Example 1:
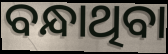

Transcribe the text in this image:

ବନ୍ଧାଥିବା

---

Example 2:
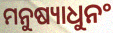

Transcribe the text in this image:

ମନୁଷ୍ୟାଧୁନଂ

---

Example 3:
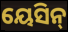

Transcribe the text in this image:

ୟେସିନ୍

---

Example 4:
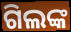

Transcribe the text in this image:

ଗିଲଙ୍କ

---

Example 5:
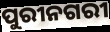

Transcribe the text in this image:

ପୁରୀନଗରୀ